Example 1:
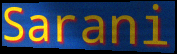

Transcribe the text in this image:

Sarani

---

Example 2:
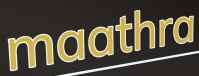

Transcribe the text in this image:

maathra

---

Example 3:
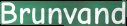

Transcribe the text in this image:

Brunvand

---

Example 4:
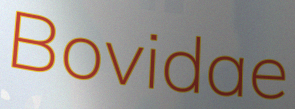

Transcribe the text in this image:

Bovidae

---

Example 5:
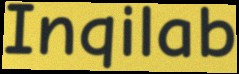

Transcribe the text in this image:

Inqilab